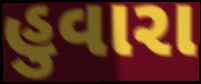
હુવારા